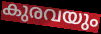
കുരവയും